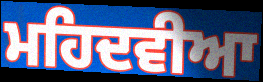
ਮਹਿਦਵੀਆ